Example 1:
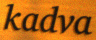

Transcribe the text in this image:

kadva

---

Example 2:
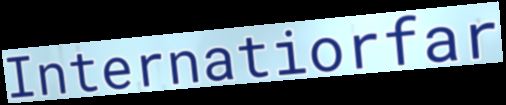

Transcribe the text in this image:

Internatiorfar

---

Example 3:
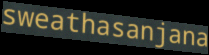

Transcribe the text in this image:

sweathasanjana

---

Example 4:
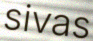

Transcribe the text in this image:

sivas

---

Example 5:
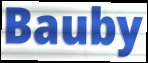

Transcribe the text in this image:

Bauby